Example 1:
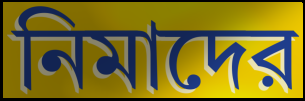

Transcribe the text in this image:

নিমাদের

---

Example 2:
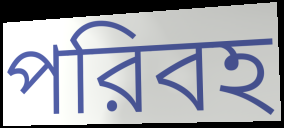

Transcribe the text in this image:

পরিবহ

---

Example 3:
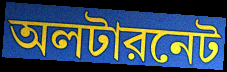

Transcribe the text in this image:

অলটারনেট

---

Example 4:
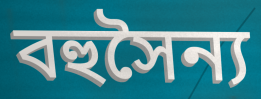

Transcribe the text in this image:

বহুসৈন্য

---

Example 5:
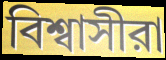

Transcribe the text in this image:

বিশ্বাসীরা